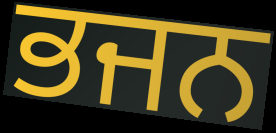
ਭਜਨ